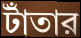
টাঁতার